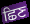
ਛਿਣ